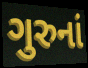
ગુરુનાં